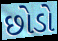
છોડો